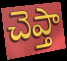
చెప్తా